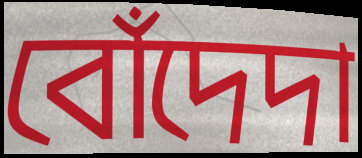
বোঁদেদা